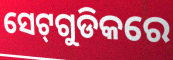
ସେଟ୍‌ଗୁଡିକରେ